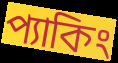
প্যাকিং